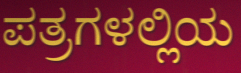
ಪತ್ರಗಳಲ್ಲಿಯ